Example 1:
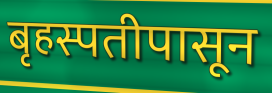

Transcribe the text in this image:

बृहस्पतीपासून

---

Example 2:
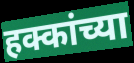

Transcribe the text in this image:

हक्कांच्या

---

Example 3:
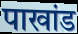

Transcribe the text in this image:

पाखांड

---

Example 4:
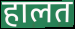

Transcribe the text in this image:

हालत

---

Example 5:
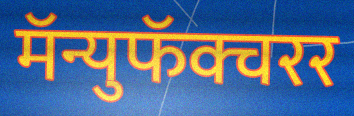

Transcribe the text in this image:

मॅन्युफॅक्चरर